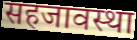
सहजावस्था